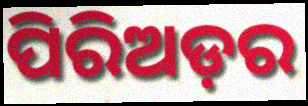
ପିରିଅଡ଼ର